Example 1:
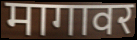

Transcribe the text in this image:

मागावर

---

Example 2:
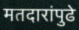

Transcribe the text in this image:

मतदारांपुढे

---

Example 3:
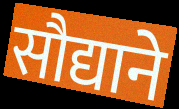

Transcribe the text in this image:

सौद्याने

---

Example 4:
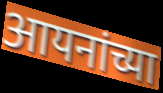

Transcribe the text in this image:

आयनांच्या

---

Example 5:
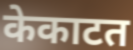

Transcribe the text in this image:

केकाटत